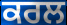
ਕਰਲ